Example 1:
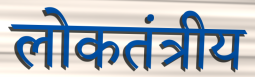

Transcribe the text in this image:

लोकतंत्रीय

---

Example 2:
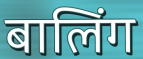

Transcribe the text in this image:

बालिंग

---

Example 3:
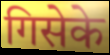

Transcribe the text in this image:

गिसेके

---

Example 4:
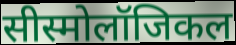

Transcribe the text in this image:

सीस्मोलॉजिकल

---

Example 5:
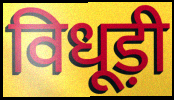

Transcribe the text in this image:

विधूड़ी